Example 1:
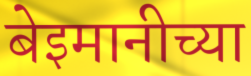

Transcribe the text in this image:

बेइमानीच्या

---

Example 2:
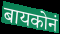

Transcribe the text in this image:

बायकोनं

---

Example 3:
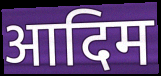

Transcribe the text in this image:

आदिम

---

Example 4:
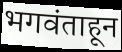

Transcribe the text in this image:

भगवंताहून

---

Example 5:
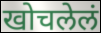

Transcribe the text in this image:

खोचलेलं